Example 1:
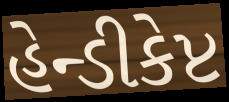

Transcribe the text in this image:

હેન્ડીકેપ્ટ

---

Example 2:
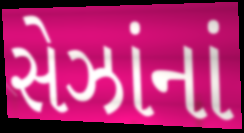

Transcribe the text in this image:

સેઝાંનાં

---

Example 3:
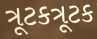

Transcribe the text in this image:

ત્રૂટકત્રૂટક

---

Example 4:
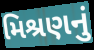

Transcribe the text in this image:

મિશ્રણનું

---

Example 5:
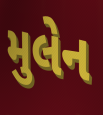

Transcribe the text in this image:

મુલેન